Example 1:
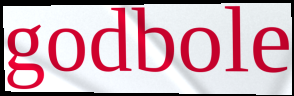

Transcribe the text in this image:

godbole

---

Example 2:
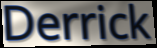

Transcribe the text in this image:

Derrick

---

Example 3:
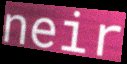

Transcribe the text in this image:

neir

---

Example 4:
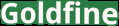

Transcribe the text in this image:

Goldfine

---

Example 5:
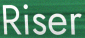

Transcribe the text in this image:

Riser